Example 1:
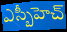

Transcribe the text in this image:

ఎస్బీహెచ్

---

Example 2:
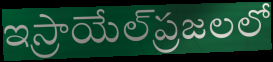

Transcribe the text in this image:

ఇస్రాయేల్‌ప్రజలలో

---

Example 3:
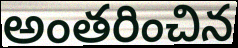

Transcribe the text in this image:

అంతరించిన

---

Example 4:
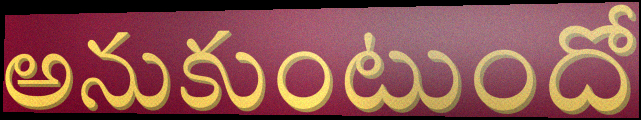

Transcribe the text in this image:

అనుకుంటుందో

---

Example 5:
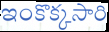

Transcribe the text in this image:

ఇంకొక్కసారి